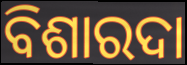
ବିଶାରଦା